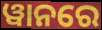
ୱାନରେ